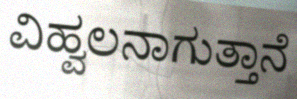
ವಿಹ್ವಲನಾಗುತ್ತಾನೆ